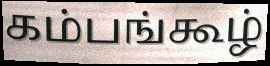
கம்பங்கூழ்